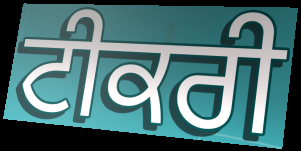
ਟੀਕਰੀ